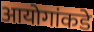
आयोगांकडे